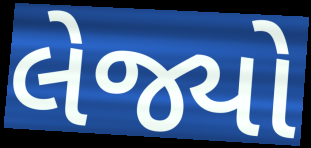
લેજ્યો